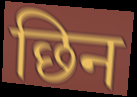
छिन